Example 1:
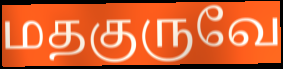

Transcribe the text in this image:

மதகுருவே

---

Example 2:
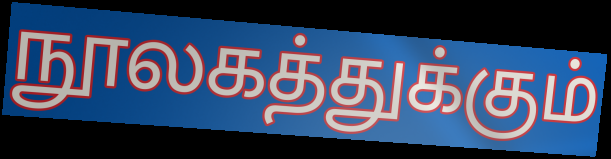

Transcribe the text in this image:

நூலகத்துக்கும்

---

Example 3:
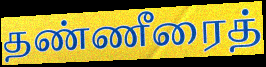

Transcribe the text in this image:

தண்ணீரைத்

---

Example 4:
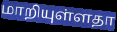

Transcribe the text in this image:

மாறியுள்ளதா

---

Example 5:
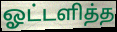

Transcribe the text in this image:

ஓட்டளித்த